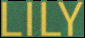
LILY